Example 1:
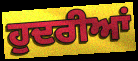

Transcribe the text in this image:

ਹੁਦਰੀਆਂ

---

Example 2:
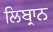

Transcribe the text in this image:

ਲਿਬ੍ਰਾਨ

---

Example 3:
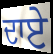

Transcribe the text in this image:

ਦਾਏ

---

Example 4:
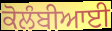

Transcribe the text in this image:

ਕੋਲੰਬੀਆਈ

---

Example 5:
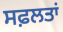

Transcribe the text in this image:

ਸਫ਼ਲਤਾਂ